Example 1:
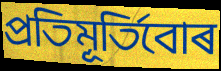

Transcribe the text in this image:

প্ৰতিমূৰ্তিবোৰ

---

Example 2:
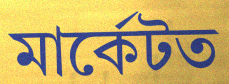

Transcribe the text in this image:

মাৰ্কেটত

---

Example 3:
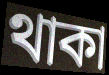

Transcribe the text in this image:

থাকা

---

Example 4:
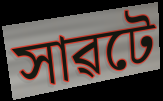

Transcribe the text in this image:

সাৱটে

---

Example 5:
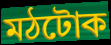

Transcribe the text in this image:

মঠটোক